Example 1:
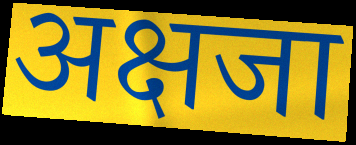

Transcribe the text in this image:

अक्षजा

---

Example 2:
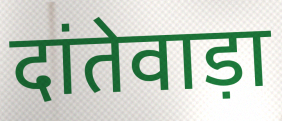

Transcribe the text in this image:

दांतेवाड़ा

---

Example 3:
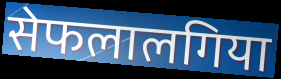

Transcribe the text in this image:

सेफलालगिया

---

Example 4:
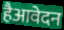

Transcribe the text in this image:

हैआवेदन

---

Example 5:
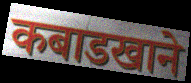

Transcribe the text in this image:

कबाडखाने